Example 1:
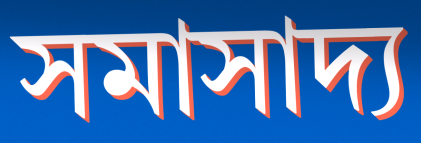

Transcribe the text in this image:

সমাসাদ্য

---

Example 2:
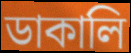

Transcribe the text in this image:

ডাকালি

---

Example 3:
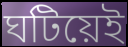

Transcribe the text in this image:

ঘটিয়েই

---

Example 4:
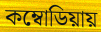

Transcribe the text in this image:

কম্বোডিয়ায়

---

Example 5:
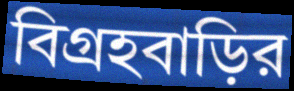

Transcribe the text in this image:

বিগ্রহবাড়ির